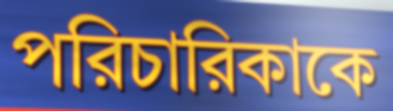
পরিচারিকাকে